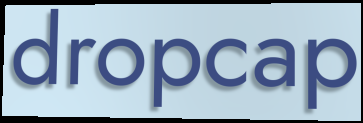
dropcap